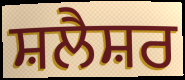
ਸ਼ਲੈਸ਼ਰ